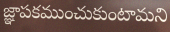
జ్ఞాపకముంచుకుంటామని